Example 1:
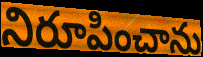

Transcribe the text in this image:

నిరూపించాను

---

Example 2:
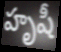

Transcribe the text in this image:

హృషీ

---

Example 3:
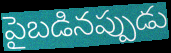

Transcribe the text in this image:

పైబడినప్పుడు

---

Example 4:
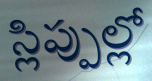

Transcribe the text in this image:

స్లిప్పుల్లో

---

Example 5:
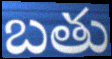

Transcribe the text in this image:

బతు